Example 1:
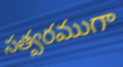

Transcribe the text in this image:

సత్వరముగా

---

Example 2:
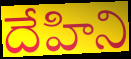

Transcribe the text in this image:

దేహిని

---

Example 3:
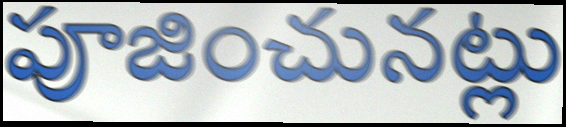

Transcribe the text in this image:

పూజించునట్లు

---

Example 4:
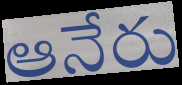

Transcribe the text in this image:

ఆనేరు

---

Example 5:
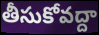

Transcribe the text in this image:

తీసుకోవద్దా